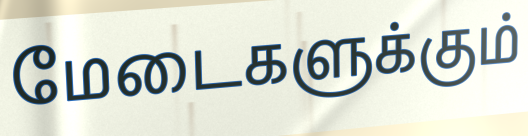
மேடைகளுக்கும்